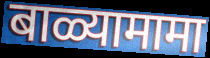
बाळ्यामामा